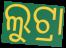
ଲୁଟ୍ରା